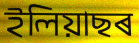
ইলিয়াছৰ